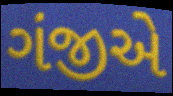
ગંજીએ